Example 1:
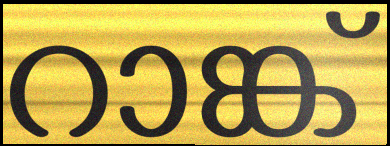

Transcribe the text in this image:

റാങ്ക്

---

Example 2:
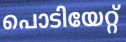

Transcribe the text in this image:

പൊടിയേറ്റ്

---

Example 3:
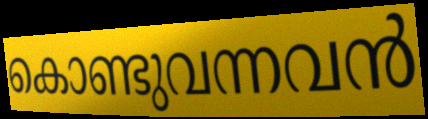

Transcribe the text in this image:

കൊണ്ടുവന്നവൻ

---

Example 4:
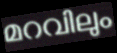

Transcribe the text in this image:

മറവിലും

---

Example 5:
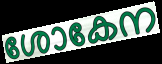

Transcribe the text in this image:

ശോകേന